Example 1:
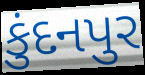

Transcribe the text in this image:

કુંદનપુર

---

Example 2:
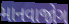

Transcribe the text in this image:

માનવાજોગ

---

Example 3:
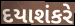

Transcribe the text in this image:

દયાશંકરે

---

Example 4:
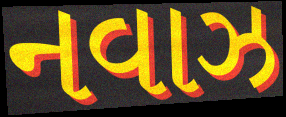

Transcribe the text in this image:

નવાઝ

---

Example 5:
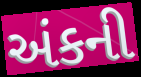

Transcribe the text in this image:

અંકની